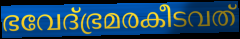
ഭവേദ്ഭ്രമരകീടവത്